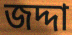
জদ্দা